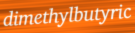
dimethylbutyric